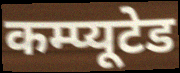
कम्प्यूटेड